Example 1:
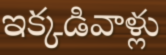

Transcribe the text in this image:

ఇక్కడివాళ్లు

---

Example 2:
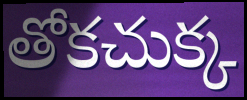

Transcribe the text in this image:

తోకచుక్క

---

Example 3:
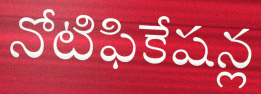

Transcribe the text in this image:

నోటిఫికేషన్ల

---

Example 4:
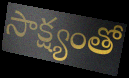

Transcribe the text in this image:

సాక్ష్యంతో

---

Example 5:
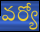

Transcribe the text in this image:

వర్యో